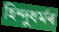
হিন্দুধৰ্মৰ